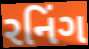
રનિંગ